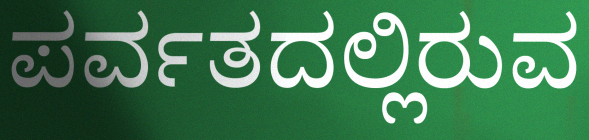
ಪರ್ವತದಲ್ಲಿರುವ